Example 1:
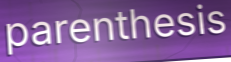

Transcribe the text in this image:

parenthesis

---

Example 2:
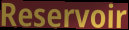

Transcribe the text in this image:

Reservoir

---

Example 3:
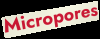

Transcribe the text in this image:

Micropores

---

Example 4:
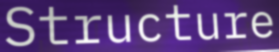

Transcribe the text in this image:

Structure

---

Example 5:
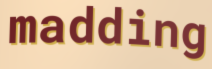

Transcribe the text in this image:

madding